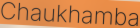
Chaukhamba